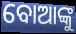
ବୋଆଙ୍କୁ